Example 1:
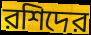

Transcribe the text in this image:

রশিদের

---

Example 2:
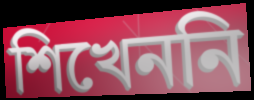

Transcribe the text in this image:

শিখেননি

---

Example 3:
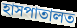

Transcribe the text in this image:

হাসপাতালত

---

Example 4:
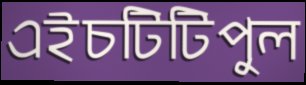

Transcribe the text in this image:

এইচটিটিপুল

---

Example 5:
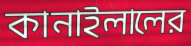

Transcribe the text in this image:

কানাইলালের